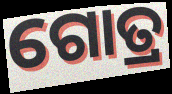
ଗୋତ୍ର